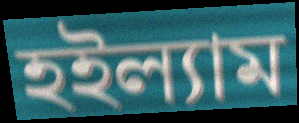
হইল্যাম